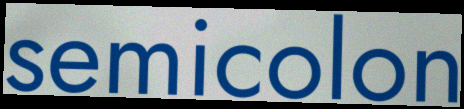
semicolon